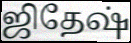
ஜிதேஷ்